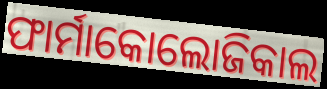
ଫାର୍ମାକୋଲୋଜିକାଲ